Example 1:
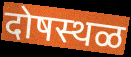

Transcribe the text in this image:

दोषस्थळ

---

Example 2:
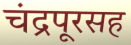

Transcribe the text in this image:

चंद्रपूरसह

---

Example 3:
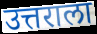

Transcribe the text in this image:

उत्तराला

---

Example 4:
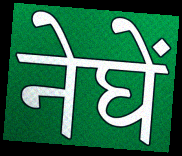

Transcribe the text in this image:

नेघें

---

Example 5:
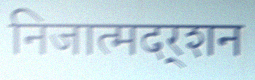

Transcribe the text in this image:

निजात्मदर्शन